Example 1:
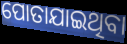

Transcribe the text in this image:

ପୋତାଯାଇଥିବା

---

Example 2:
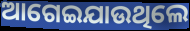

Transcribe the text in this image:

ଆଗେଇଯାଉଥିଲେ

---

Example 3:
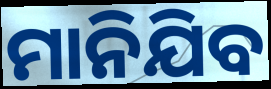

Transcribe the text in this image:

ମାନିଯିବ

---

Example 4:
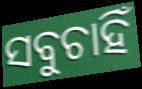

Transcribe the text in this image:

ସବୁଚାହିଁ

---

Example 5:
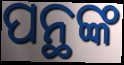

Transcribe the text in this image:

ପନ୍ଥଙ୍କ